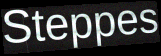
Steppes